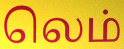
லெம்